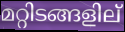
മറ്റിടങ്ങളില്